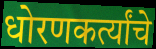
धोरणकर्त्यांचे